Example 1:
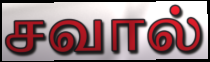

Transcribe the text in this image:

சவால்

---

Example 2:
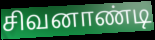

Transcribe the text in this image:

சிவனாண்டி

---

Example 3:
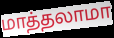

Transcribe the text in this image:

மாத்தலாமா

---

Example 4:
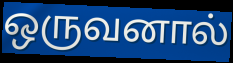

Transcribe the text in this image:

ஒருவனால்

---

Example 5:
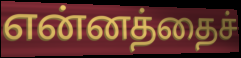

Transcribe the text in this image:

என்னத்தைச்